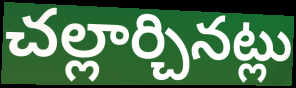
చల్లార్చినట్లు